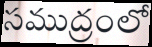
సముద్రంలో